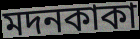
মদনকাকা